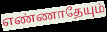
எண்ணாதேயும்